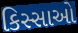
કિસ્સાઓ